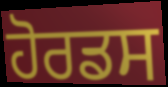
ਹੋਰਡਸ